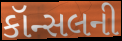
કૉન્સલની